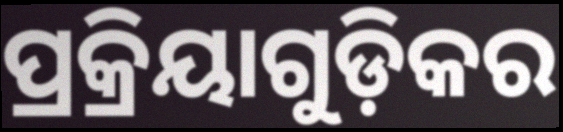
ପ୍ରକ୍ରିୟାଗୁଡ଼ିକର